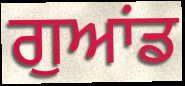
ਗੁਆਂਡ